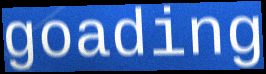
goading